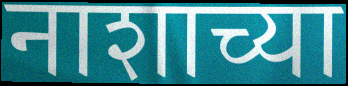
नाशाच्या